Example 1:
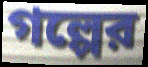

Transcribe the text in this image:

গল্পের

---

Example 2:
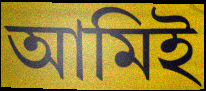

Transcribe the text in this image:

আমিই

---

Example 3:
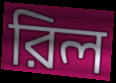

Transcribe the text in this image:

রিল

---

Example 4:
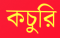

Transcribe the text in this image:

কচুরি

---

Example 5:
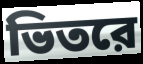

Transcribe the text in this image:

ভিতরে